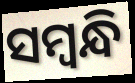
ସମ୍ବନ୍ଧି